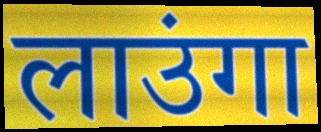
लाउंगा